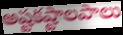
అష్టకష్టాలపాలు